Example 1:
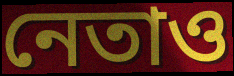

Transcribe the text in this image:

নেতাও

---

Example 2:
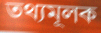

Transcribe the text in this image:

তথ্যমূলক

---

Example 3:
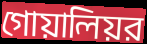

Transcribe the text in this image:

গোয়ালিয়র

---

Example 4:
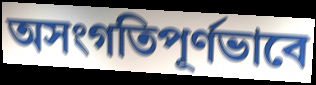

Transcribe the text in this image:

অসংগতিপূর্ণভাবে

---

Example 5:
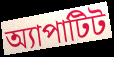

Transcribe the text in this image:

অ্যাপাটিট